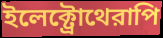
ইলেক্ট্রোথেরাপি